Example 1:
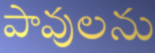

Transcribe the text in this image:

పావులను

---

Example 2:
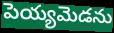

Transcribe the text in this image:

పెయ్యమెడను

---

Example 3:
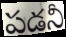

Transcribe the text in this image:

పడనీ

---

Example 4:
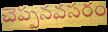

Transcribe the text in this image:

చెప్పనవసరం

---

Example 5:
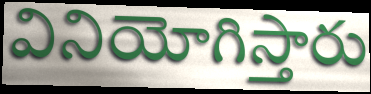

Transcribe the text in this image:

వినియోగిస్తారు